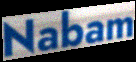
Nabam